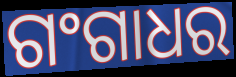
ଗଂଗାଧର